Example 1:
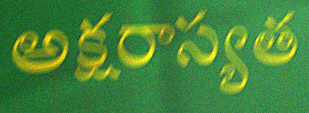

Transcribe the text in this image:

అక్షరాస్యత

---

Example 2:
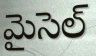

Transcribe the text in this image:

మైసెల్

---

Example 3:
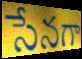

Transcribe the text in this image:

సేనగా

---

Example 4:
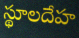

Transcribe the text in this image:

స్థూలదేహ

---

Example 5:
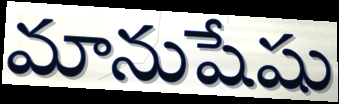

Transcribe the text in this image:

మానుషేషు